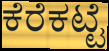
ಕೆರೆಕಟ್ಟೆ